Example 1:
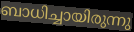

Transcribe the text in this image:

ബാധിച്ചായിരുന്നു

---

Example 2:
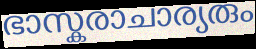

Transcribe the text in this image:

ഭാസ്കരാചാര്യരും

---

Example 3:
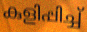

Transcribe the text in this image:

കുളിപ്പിച്ച്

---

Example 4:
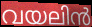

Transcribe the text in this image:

വയലിൻ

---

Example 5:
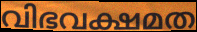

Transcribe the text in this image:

വിഭവക്ഷമത